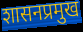
शासनप्रमुख